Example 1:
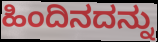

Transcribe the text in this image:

ಹಿಂದಿನದನ್ನು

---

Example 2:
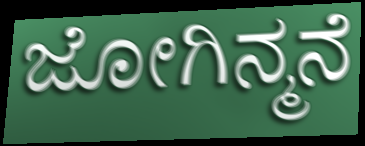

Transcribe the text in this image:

ಜೋಗಿನ್ಮನೆ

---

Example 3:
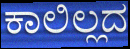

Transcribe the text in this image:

ಕಾಲಿಲ್ಲದ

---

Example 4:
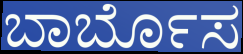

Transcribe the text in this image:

ಬಾರ್ಬೊಸ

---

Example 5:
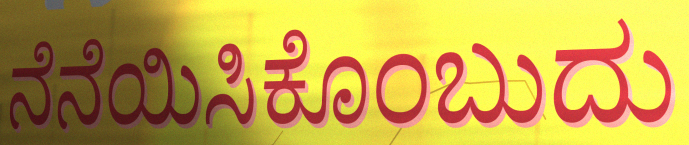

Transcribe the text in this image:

ನೆನೆಯಿಸಿಕೊಂಬುದು